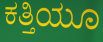
ಕತ್ತಿಯೂ